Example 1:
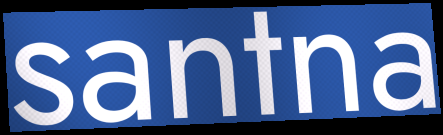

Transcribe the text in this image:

santna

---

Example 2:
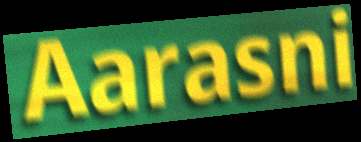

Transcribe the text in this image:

Aarasni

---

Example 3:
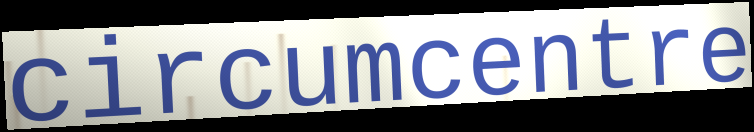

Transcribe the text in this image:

circumcentre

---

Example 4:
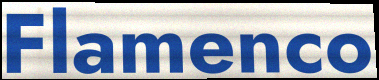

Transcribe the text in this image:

Flamenco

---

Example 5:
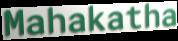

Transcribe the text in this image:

Mahakatha